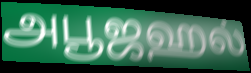
அபூஜஹல்